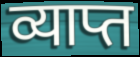
व्‍याप्‍त